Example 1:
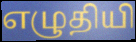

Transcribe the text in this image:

எழுதியி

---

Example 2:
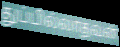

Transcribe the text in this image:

துப்பில்லாதவன்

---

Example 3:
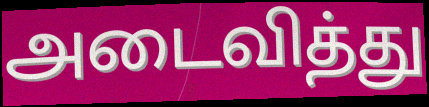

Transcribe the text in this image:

அடைவித்து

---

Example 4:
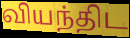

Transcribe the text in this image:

வியந்திட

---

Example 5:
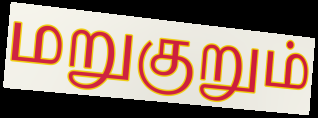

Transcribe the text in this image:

மறுகுறும்